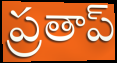
ప్రతాప్